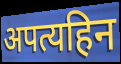
अपत्यहिन